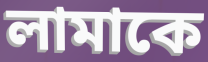
লামাকে